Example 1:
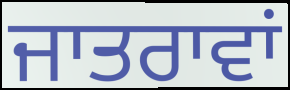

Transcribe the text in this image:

ਜਾਤਰਾਵਾਂ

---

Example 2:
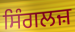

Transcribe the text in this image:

ਸਿੰਗਲਜ਼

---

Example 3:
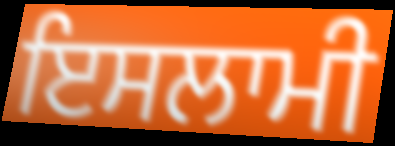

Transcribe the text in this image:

ਇਸਲਾਮੀ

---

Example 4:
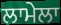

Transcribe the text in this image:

ਲਾਮੇਲਾ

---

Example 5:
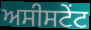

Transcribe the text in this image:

ਅਸੀਸਟੇਂਟ